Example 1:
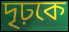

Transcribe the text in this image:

দৃঢ়কে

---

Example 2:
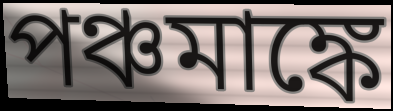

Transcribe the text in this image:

পঞ্চমাঙ্কে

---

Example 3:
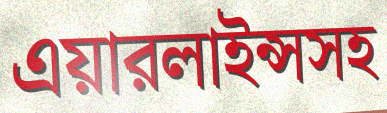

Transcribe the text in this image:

এয়ারলাইন্সসহ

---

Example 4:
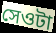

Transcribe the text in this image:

সেওটা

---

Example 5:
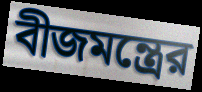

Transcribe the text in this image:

বীজমন্ত্রের